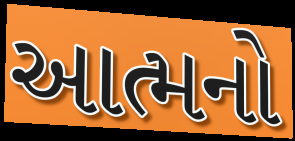
આત્મનો